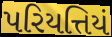
પરિયત્તિયં